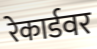
रेकार्डवर